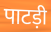
पाटड़ी